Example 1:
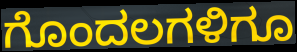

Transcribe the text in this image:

ಗೊಂದಲಗಳಿಗೂ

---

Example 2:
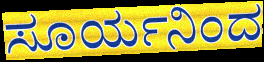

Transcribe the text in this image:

ಸೂರ್ಯನಿಂದ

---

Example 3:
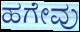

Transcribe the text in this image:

ಹಗೇವು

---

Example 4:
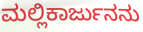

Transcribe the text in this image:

ಮಲ್ಲಿಕಾರ್ಜುನನು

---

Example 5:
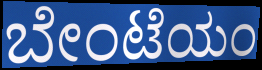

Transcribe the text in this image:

ಬೇಂಟೆಯಂ